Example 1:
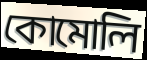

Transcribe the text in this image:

কোমোলি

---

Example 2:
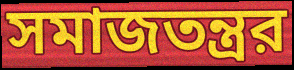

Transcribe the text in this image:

সমাজতন্ত্রর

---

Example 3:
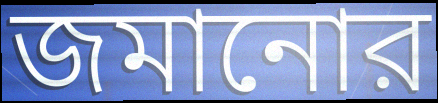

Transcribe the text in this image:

জমানোর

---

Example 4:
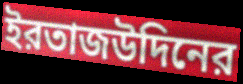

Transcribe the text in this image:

ইরতাজউদিনের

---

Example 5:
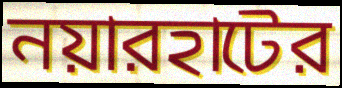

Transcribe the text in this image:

নয়ারহাটের